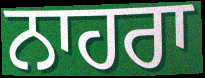
ਨਾਹਰਾ